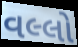
વલ્લો